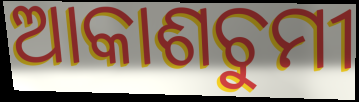
ଆକାଶଚୁମୀ